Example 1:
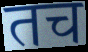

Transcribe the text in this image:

तच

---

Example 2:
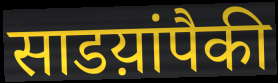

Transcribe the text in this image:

साडय़ांपैकी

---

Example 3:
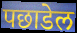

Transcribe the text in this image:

पछाडेल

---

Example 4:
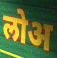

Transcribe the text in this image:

लोअ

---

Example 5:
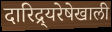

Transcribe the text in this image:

दारिद्र्यरेषेखाली